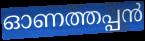
ഓണത്തപ്പൻ